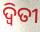
ଦ୍ୱିତୀ